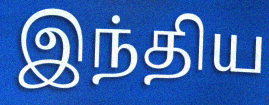
இந்திய